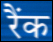
रैंक